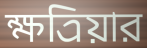
ক্ষত্রিয়ার